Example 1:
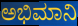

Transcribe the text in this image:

ಅಭಿಮಾನಿ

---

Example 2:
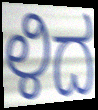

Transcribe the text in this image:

ಳಿದ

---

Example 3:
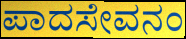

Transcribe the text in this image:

ಪಾದಸೇವನಂ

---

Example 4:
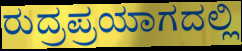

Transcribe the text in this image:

ರುದ್ರಪ್ರಯಾಗದಲ್ಲಿ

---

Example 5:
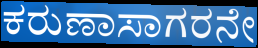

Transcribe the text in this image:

ಕರುಣಾಸಾಗರನೇ